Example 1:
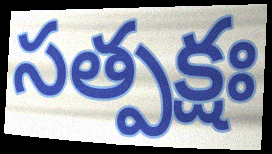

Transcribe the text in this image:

సత్పక్షః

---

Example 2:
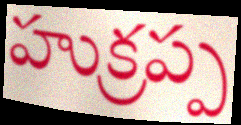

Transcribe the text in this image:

హుక్రప్ప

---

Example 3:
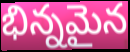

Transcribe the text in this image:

భిన్నమైన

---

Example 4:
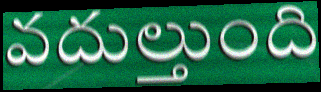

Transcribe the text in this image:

వదుల్తుంది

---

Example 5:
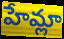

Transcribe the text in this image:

హేమ్లా